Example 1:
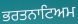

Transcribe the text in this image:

ਭਰਤਨਾਟਿਅਮ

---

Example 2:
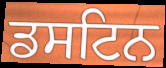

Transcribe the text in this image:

ਡਸਟਿਨ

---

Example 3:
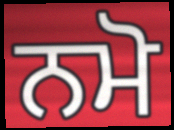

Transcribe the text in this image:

ਨਮੋ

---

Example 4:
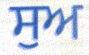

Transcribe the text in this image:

ਸੁਅ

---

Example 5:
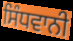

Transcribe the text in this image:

ਸਿੰਧਵਾਨੀ